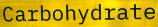
Carbohydrate